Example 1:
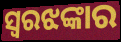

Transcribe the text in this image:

ସ୍ୱରଝଙ୍କାର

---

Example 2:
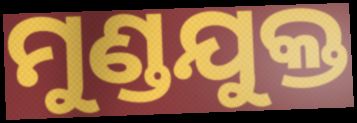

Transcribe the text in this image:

ମୁଣ୍ଡଯୁକ୍ତ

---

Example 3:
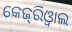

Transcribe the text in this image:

କେଜ୍‌ରିଓ୍ବାଲ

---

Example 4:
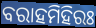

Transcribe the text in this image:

ବରାହମିହିରଃ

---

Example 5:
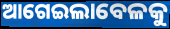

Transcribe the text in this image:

ଆଗେଇଲାବେଳକୁ